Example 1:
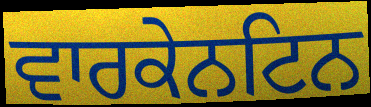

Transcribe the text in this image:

ਵਾਰਕੇਨਟਿਨ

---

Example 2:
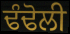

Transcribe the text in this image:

ਢੰਢੋਲੀ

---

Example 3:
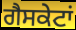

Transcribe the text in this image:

ਗੈਸਕੇਟਾਂ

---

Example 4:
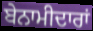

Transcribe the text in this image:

ਬੇਨਾਮੀਦਾਰਾਂ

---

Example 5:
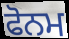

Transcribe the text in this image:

ਫੋਨਮ